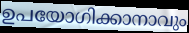
ഉപയോഗിക്കാനാവും